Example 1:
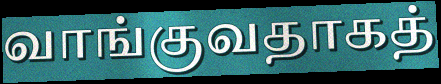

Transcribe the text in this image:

வாங்குவதாகத்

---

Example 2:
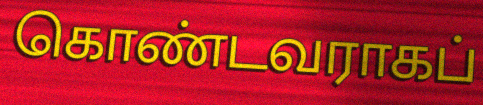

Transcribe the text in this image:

கொண்டவராகப்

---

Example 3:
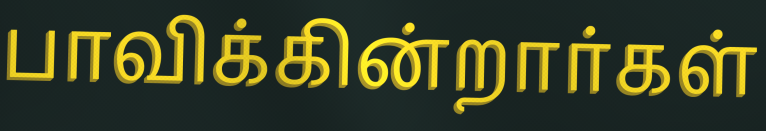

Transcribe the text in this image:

பாவிக்கின்றார்கள்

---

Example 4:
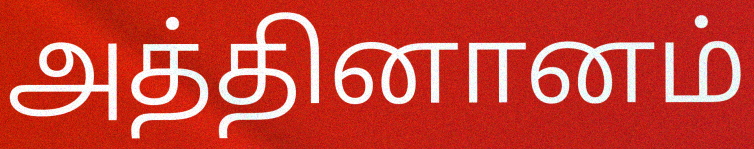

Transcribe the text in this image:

அத்தினானம்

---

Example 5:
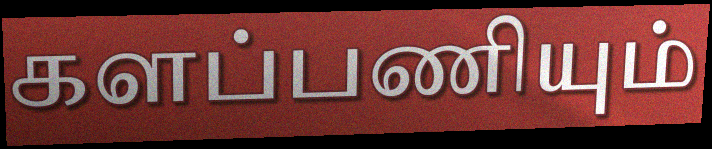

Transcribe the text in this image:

களப்பணியும்